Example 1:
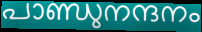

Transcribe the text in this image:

പാണ്ഡുനന്ദനം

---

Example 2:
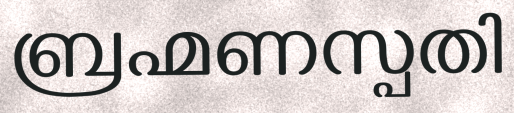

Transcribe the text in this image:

ബ്രഹ്മണസ്പതി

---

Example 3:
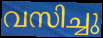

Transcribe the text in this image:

വസിച്ചു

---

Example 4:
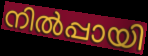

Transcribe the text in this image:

നിൽപ്പായി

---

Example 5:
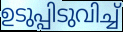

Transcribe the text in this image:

ഉടുപ്പിടുവിച്ച്